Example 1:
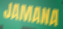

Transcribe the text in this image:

JAMANA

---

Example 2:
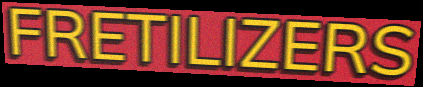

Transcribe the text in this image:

FRETILIZERS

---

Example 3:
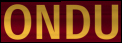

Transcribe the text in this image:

ONDU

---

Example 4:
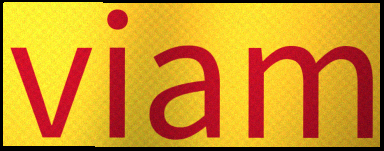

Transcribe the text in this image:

viam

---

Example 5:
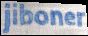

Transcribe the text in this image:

jiboner